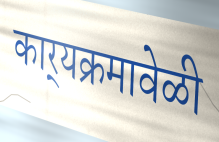
कार्यक्रमावेळी